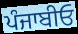
ਪੰਜਾਬੀਓ